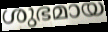
ശുഭമായ